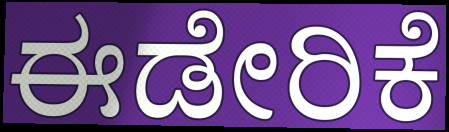
ಈಡೇರಿಕೆ